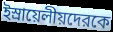
ইস্রায়েলীয়দেরকে